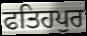
ਫਤਿਹਪੁਰ